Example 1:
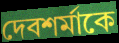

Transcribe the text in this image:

দেবশর্মাকে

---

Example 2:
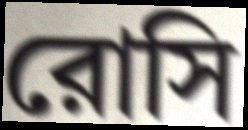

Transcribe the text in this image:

রোসি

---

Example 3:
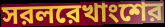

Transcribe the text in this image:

সরলরেখাংশের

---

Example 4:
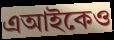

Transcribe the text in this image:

এআইকেও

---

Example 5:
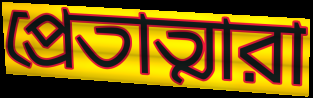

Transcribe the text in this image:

প্রেতাত্মারা